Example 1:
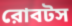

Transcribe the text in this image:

রোবটস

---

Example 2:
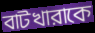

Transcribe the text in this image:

বাটখারাকে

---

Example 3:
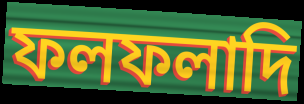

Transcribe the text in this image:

ফলফলাদি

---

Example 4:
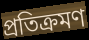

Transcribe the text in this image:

প্রতিক্রমণ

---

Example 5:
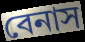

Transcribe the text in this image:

বেনাস